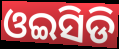
ଓଇସିଡି